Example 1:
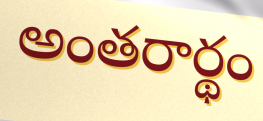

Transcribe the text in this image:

అంతరార్థం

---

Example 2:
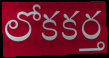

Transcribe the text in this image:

లోకకర్త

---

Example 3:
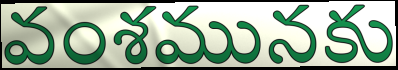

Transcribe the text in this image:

వంశమునకు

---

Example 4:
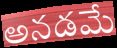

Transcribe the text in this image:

అనడమే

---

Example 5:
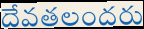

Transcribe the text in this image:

దేవతలందరు